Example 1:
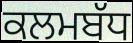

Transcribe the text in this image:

ਕਲਮਬੱਧ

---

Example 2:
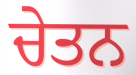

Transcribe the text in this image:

ਚੇਤਨ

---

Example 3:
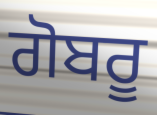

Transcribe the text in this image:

ਗੋਬਰੂ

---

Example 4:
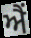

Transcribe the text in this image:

ਐੰ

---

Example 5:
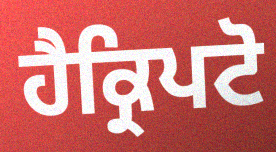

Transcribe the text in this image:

ਹੈਕ੍ਰਿਪਟੋ